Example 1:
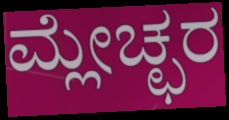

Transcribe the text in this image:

ಮ್ಲೇಚ್ಛರ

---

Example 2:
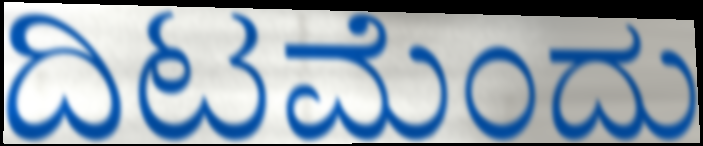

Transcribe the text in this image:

ದಿಟಮೆಂದು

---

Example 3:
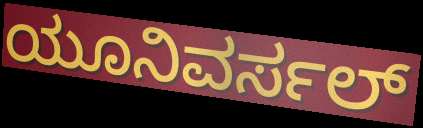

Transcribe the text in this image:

ಯೂನಿವರ್ಸಲ್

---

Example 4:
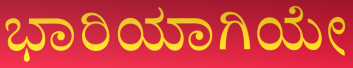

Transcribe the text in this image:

ಭಾರಿಯಾಗಿಯೇ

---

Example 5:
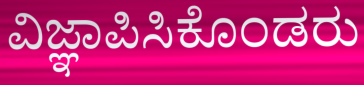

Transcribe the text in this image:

ವಿಜ್ಞಾಪಿಸಿಕೊಂಡರು